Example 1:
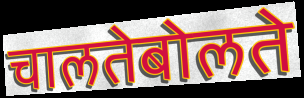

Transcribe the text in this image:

चालतेबोलते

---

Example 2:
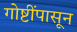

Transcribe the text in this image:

गोष्टींपासून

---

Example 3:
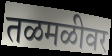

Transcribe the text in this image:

तळमळीवर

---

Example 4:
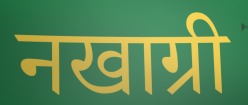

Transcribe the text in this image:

नखाग्री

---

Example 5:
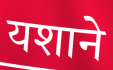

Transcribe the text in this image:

यशाने